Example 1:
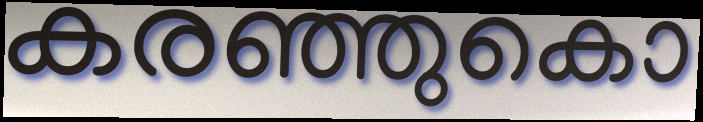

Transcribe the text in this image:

കരഞ്ഞുകൊ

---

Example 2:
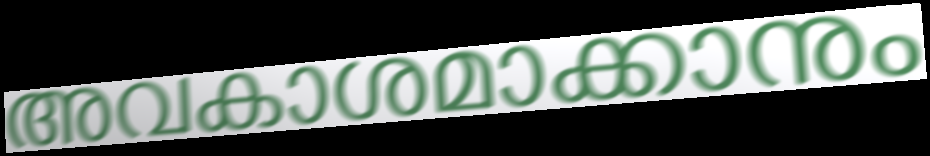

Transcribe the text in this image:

അവകാശമാക്കാനും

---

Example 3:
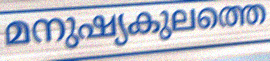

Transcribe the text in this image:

മനുഷ്യകുലത്തെ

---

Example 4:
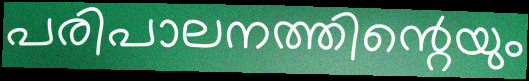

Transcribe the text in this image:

പരിപാലനത്തിന്റെയും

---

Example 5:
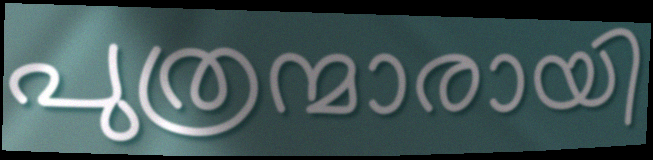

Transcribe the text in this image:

പുത്രന്മാരായി